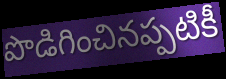
పొడిగించినప్పటికీ